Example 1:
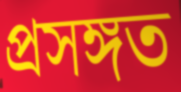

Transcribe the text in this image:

প্রসঙ্গত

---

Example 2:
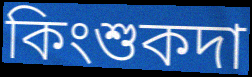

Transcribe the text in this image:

কিংশুকদা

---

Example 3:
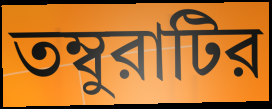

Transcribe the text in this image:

তম্বুরাটির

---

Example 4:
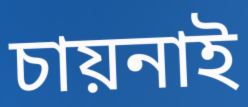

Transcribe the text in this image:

চায়নাই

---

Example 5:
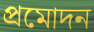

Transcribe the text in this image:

প্রমোদন